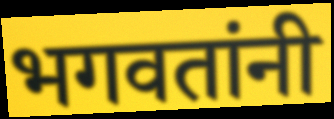
भगवतांनी